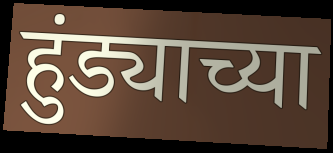
हुंड्याच्या